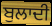
ਬੁਲਾਦੀ